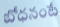
బోధనంటే